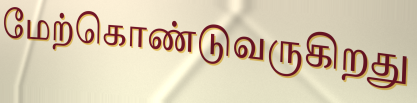
மேற்கொண்டுவருகிறது